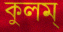
কুলম্